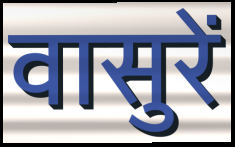
वासुरें